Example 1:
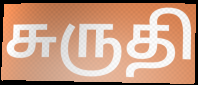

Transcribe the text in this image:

சுருதி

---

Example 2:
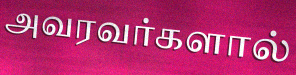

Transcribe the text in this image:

அவரவர்களால்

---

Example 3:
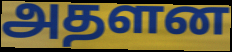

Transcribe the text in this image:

அதளன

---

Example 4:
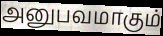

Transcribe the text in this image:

அனுபவமாகும்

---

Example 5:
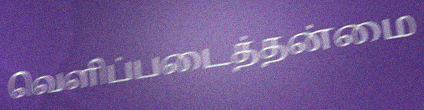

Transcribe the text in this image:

வெளிப்படைத்தன்மை